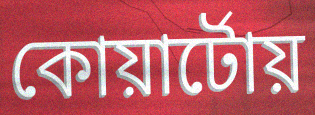
কোয়ার্টোয়